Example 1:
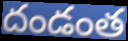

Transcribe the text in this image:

దండంత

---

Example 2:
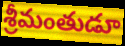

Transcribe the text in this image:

శ్రీమంతుడూ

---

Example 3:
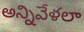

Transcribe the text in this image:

అన్నివేళలా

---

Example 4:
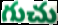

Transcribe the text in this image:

గుచు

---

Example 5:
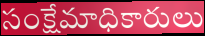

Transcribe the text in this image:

సంక్షేమాధికారులు